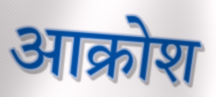
आक्रोश